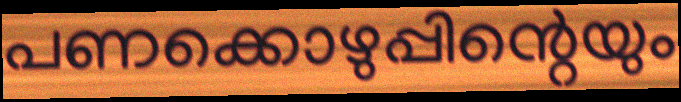
പണക്കൊഴുപ്പിന്റെയും